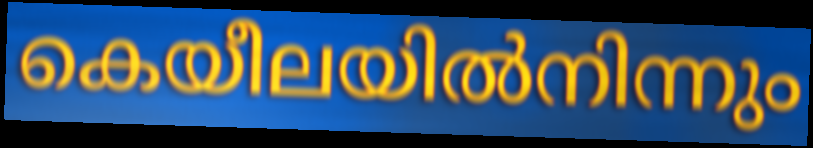
കെയീലയിൽനിന്നും